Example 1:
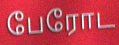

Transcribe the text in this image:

பேரோட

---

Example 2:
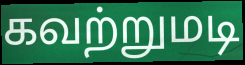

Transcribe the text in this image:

கவற்றுமடி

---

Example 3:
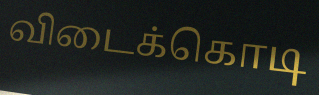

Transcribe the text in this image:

விடைக்கொடி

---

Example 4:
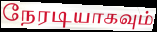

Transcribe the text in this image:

நேரடியாகவும்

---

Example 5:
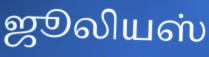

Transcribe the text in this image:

ஜூலியஸ்